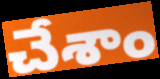
చేశాం